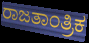
ರಾಜತಾಂತ್ರಿಕ